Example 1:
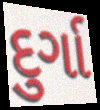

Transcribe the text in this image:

દુર્ગા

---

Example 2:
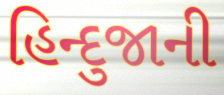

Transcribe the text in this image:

હિન્દુજાની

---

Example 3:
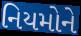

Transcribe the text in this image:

નિયમોને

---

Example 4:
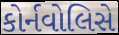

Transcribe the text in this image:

કોર્નવોલિસે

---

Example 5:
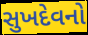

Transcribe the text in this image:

સુખદેવનો